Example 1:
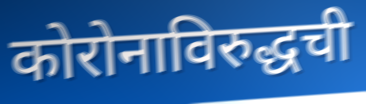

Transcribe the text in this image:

कोरोनाविरुद्धची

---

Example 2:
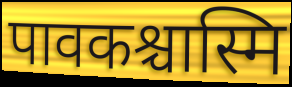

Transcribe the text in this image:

पावकश्चास्मि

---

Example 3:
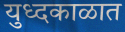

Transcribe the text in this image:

युध्दकाळात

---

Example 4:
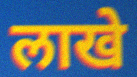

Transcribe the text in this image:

लाखे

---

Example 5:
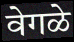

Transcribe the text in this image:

वेगळे